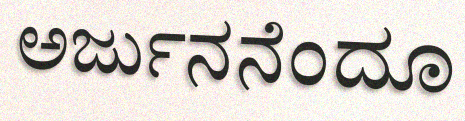
ಅರ್ಜುನನೆಂದೂ